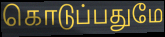
கொடுப்பதுமே